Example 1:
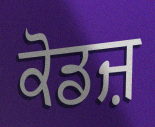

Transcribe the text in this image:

ਕੋਡਜ਼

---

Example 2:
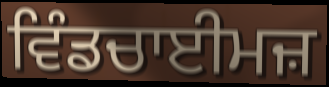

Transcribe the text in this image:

ਵਿੰਡਚਾਈਮਜ਼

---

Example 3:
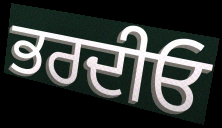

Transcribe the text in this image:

ਭਰਦੀਓ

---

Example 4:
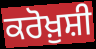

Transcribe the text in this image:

ਕਰੋਖ਼ੁਸ਼ੀ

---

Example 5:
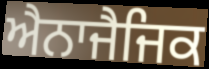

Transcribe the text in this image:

ਐਨਾਜੈਜਿਕ